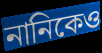
নানিকেও